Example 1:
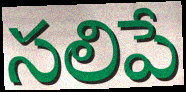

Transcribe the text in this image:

సలిపే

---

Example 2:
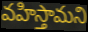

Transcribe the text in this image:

వహిస్తామని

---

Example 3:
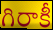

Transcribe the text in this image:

గిరాకీ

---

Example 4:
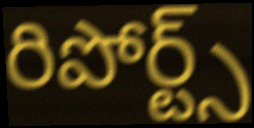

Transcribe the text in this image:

రిపోర్ట్స్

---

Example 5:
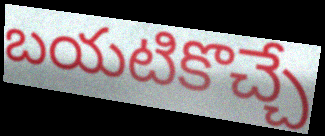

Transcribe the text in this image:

బయటికొచ్చే